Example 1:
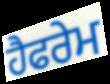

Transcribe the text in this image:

ਹੈਫਰੇਮ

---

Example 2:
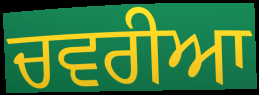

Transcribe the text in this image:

ਚਵਰੀਆ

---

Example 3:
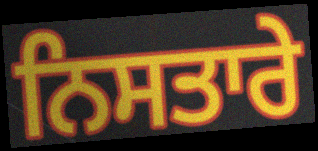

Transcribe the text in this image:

ਨਿਸਤਾਰੇ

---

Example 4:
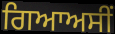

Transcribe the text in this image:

ਗਿਆਅਸੀਂ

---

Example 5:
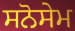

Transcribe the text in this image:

ਸਨੋਸੇਮ